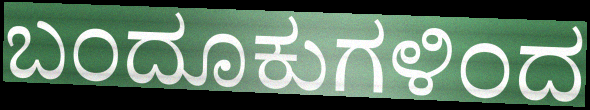
ಬಂದೂಕುಗಳಿಂದ